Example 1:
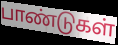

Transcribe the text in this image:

பாண்டுகள்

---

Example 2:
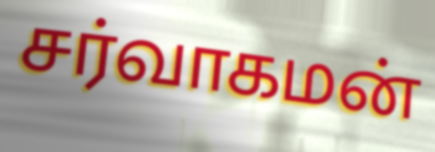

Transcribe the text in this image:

சர்வாகமன்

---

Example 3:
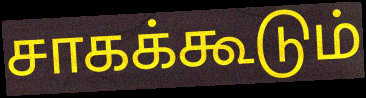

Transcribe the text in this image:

சாகக்கூடும்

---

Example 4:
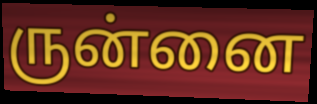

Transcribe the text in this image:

ருன்னை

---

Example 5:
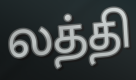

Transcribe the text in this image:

லத்தி